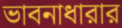
ভাবনাধারার